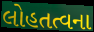
લોહતત્વના